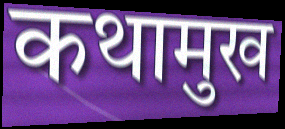
कथामुख